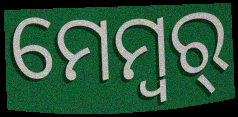
ମେମ୍ବର୍